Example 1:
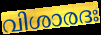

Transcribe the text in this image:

വിശാരദഃ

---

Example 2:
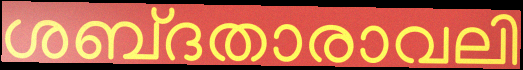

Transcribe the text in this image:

ശബ്‌ദതാരാവലി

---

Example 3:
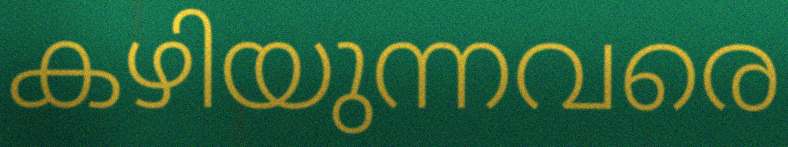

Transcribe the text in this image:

കഴിയുന്നവരെ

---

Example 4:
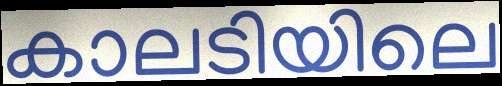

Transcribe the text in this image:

കാലടിയിലെ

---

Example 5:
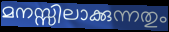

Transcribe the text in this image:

മനസ്സിലാക്കുന്നതും